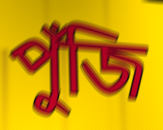
পুঁজি